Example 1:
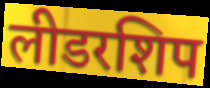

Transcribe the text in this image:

लीडरशिप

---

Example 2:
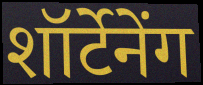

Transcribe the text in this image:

शॉर्टेनेंग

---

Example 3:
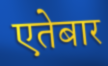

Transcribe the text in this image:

एतेबार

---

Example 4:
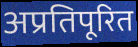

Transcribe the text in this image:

अप्रतिपूरित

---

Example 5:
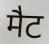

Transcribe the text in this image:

मैट